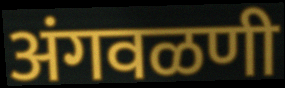
अंगवळणी